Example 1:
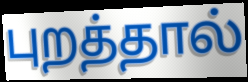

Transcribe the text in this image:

புறத்தால்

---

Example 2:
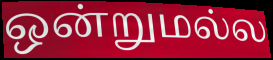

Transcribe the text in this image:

ஒன்றுமல்ல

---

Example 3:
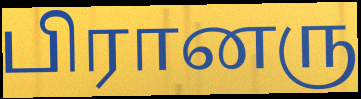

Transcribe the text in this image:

பிரானரு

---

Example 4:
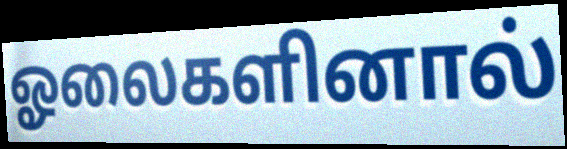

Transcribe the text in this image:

ஓலைகளினால்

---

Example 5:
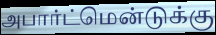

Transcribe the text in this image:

அபார்ட்மென்டுக்கு